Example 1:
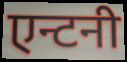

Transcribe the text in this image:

एन्टनी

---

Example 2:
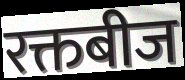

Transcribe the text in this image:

रक्तबीज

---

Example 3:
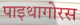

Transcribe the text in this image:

पाइथागोरस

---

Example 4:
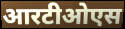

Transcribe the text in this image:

आरटीओएस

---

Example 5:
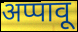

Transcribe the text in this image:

अप्पावू